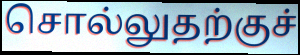
சொல்லுதற்குச்